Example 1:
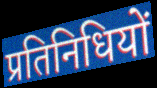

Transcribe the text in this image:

प्रतिनिधियों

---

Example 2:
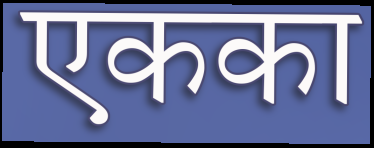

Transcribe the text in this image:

एकका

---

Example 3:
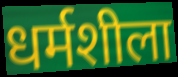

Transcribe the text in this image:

धर्मशीला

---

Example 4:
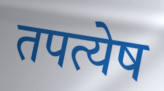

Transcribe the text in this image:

तपत्येष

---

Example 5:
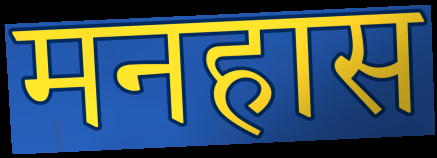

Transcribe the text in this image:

मनहास